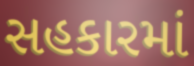
સહકારમાં